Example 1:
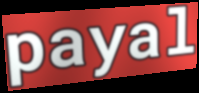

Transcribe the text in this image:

payal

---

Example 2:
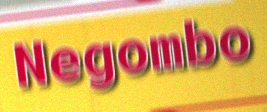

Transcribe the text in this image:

Negombo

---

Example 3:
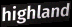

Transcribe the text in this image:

highland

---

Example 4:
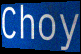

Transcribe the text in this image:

Choy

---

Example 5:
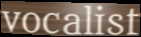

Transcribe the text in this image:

vocalist